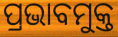
ପ୍ରଭାବମୁକ୍ତ